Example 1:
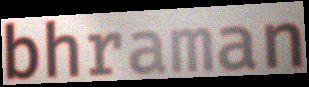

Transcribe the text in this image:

bhraman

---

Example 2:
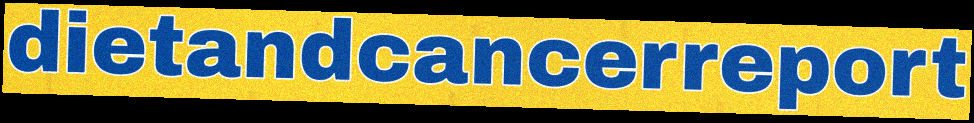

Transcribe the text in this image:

dietandcancerreport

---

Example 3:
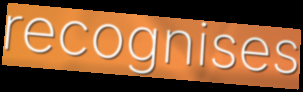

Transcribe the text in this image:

recognises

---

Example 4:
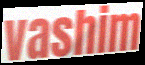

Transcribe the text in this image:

vashim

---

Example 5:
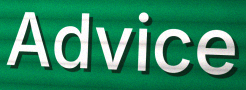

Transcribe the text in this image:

Advice